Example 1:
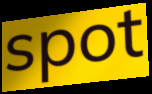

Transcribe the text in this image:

spot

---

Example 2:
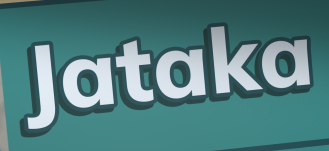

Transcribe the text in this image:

Jataka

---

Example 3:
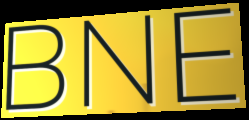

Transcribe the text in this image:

BNE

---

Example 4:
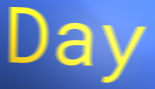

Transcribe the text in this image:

Day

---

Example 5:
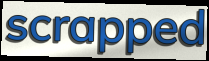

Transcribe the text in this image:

scrapped